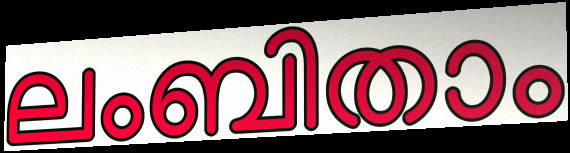
ലംബിതാം